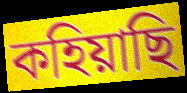
কহিয়াছি